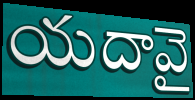
యదావై